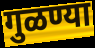
गुळण्या